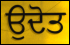
ਉਦੋਤ